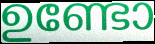
ഉണ്ടോ